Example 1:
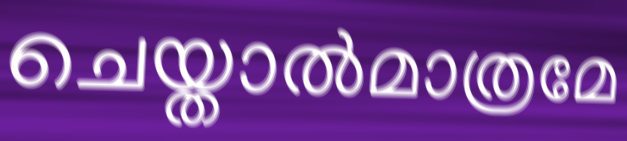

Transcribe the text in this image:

ചെയ്താൽമാത്രമേ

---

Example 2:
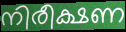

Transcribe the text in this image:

നിരീക്ഷണ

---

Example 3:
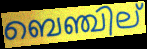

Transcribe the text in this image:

ബെഞ്ചില്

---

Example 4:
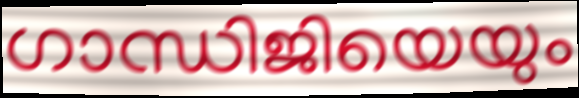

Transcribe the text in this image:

ഗാന്ധിജിയെയും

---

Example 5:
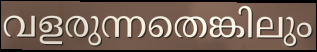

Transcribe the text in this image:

വളരുന്നതെങ്കിലും